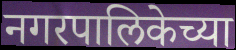
नगरपालिकेच्या